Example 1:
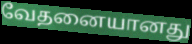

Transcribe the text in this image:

வேதனையானது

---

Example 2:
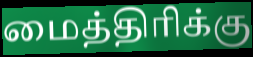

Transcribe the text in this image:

மைத்திரிக்கு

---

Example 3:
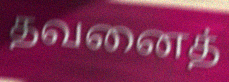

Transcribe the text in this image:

தவனைத்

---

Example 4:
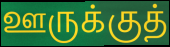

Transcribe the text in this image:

ஊருக்குத்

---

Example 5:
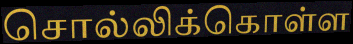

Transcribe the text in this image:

சொல்லிக்கொள்ள